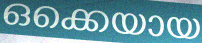
ഒക്കെയായ